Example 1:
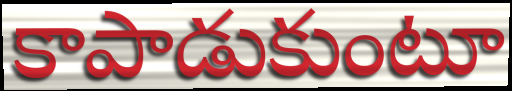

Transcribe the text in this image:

కాపాడుకుంటూ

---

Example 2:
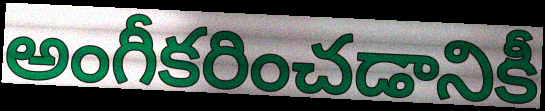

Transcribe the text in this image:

అంగీకరించడానికీ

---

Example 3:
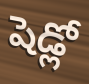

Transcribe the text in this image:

షెడ్లో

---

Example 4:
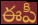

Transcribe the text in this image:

ఈపీ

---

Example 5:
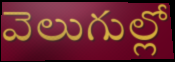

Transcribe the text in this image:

వెలుగుల్లో